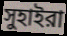
সুহাইরা